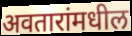
अवतारांमधील